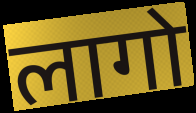
लागो